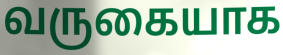
வருகையாக